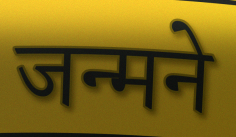
जन्मने